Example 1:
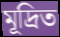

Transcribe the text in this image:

মূদ্রিত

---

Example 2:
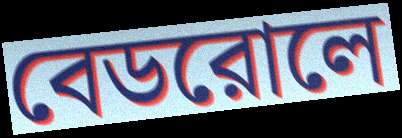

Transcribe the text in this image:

বেডরোলে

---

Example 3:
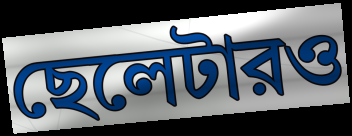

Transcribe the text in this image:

ছেলেটারও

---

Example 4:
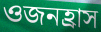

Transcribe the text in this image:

ওজনহ্রাস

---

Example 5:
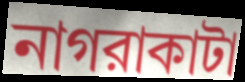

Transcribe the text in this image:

নাগরাকাটা